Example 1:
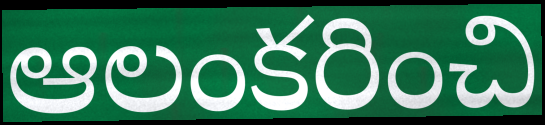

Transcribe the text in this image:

ఆలంకరించి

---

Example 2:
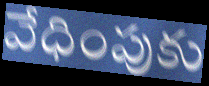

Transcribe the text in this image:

వేధింపుకు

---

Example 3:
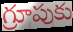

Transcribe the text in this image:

గ్రూపుకు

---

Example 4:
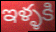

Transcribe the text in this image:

ఇళ్ళకి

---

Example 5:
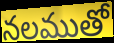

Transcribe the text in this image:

నలముతో